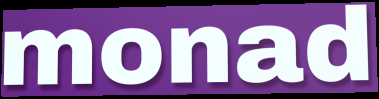
monad